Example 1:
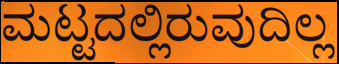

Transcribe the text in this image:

ಮಟ್ಟದಲ್ಲಿರುವುದಿಲ್ಲ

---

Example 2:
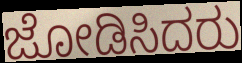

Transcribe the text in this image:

ಜೋಡಿಸಿದರು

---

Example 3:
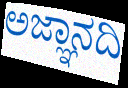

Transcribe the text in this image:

ಅಜ್ಞಾನದಿ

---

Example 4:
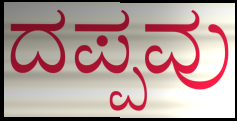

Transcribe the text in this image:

ದಪ್ಪವು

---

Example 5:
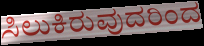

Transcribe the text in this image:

ಸಿಲುಕಿರುವುದರಿಂದ